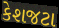
કેશજટા